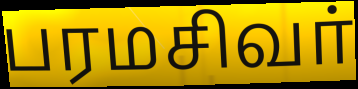
பரமசிவர்